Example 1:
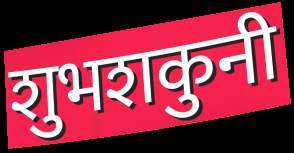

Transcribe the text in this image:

शुभशकुनी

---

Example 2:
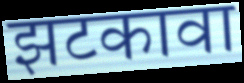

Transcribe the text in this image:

झटकावा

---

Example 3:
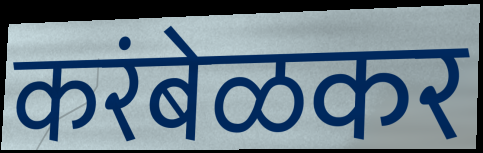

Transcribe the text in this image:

करंबेळकर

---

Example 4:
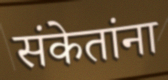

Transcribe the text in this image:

संकेतांना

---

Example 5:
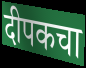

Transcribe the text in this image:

दीपकचा